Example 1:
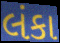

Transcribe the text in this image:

લંકા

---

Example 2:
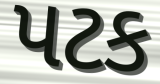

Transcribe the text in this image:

પટક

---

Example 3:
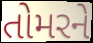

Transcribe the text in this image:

તોમરને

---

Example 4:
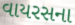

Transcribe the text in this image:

વાયરસના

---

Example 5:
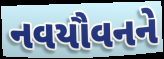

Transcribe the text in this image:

નવયૌવનને